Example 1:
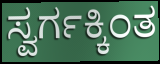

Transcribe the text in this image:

ಸ್ವರ್ಗಕ್ಕಿಂತ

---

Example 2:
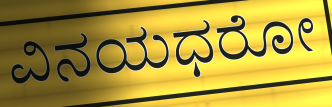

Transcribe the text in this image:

ವಿನಯಧರೋ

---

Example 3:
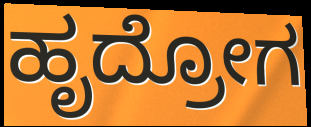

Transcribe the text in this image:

ಹೃದ್ರೋಗ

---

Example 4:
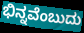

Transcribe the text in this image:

ಭಿನ್ನವೆಂಬುದು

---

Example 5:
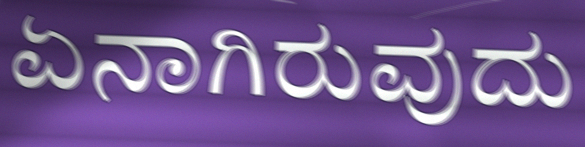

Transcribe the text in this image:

ಏನಾಗಿರುವುದು